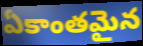
ఏకాంతమైన